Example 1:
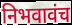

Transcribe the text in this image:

निभवावंच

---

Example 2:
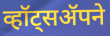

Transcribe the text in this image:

व्हॉट्सॲपने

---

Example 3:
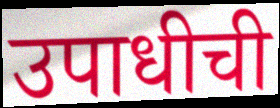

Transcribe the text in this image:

उपाधीची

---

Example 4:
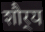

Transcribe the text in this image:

शौर्य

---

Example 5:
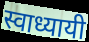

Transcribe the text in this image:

स्वाध्यायी